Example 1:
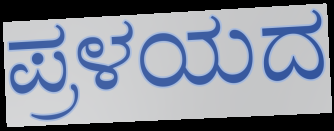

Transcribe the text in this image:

ಪ್ರಳಯದ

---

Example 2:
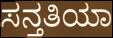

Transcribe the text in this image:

ಸನ್ತತಿಯಾ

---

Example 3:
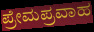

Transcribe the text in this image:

ಪ್ರೇಮಪ್ರವಾಹ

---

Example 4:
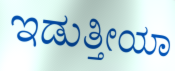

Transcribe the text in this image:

ಇಡುತ್ತೀಯಾ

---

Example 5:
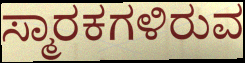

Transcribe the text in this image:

ಸ್ಮಾರಕಗಳಿರುವ